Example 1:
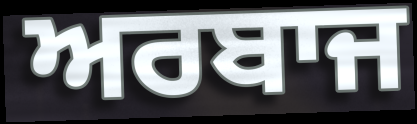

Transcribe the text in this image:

ਅਰਬਾਜ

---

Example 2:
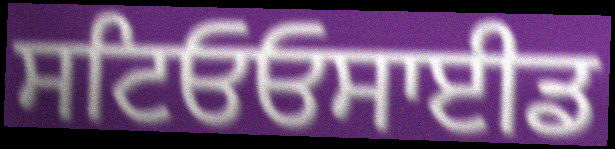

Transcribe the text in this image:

ਸਟਿਓਓਸਾਈਡ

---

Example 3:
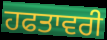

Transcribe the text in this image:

ਹਫਤਾਵਰੀ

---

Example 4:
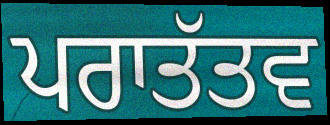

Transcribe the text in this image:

ਪਰਾਤੱਤਵ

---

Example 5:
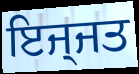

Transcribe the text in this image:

ਇਜ੍ਜਤ